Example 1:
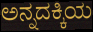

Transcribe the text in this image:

ಅನ್ನದಕ್ಕಿಯ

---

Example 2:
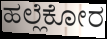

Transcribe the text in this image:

ಹಲ್ಲೆಕೋರ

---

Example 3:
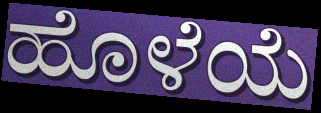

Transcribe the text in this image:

ಹೊಳೆಯೆ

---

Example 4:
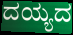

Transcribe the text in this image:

ದಯ್ಯದ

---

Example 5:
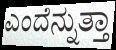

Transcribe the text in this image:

ಎಂದೆನ್ನುತ್ತಾ